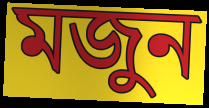
মজুন